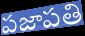
పజాపతి